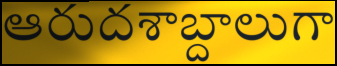
ఆరుదశాబ్దాలుగా